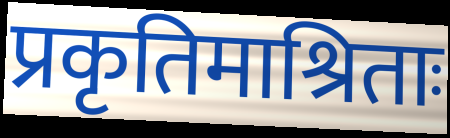
प्रकृतिमाश्रिताः